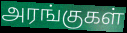
அரங்குகள்